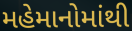
મહેમાનોમાંથી